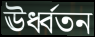
ঊর্ধ্বতন